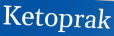
Ketoprak